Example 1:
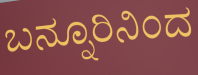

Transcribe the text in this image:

ಬನ್ನೂರಿನಿಂದ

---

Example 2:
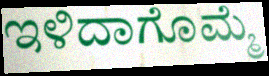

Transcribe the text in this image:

ಇಳಿದಾಗೊಮ್ಮೆ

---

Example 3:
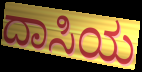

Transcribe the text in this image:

ದಾಸಿಯ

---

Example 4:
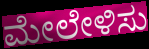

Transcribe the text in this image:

ಮೇಲೇಳಿಸು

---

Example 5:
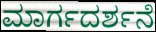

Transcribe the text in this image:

ಮಾರ್ಗದರ್ಶನೆ